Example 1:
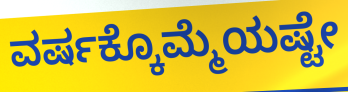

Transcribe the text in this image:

ವರ್ಷಕ್ಕೊಮ್ಮೆಯಷ್ಟೇ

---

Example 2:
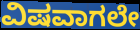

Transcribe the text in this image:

ವಿಷವಾಗಲೇ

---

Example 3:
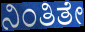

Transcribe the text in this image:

ನಿಂತಿತೇ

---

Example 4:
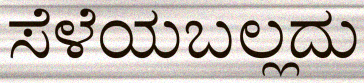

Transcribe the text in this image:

ಸೆಳೆಯಬಲ್ಲದು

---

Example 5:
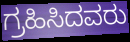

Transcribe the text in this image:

ಗ್ರಹಿಸಿದವರು